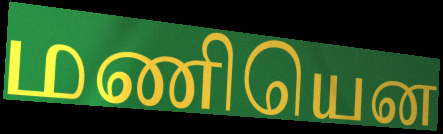
மணியென